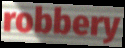
robbery